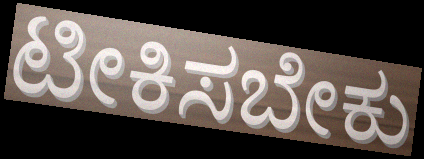
ಟೀಕಿಸಬೇಕು